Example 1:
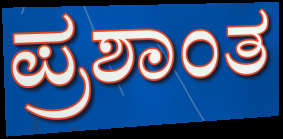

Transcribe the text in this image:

ಪ್ರಶಾಂತ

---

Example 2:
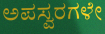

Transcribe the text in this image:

ಅಪಸ್ವರಗಳೇ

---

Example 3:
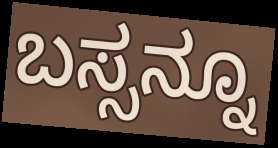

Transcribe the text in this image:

ಬಸ್ಸನ್ನೂ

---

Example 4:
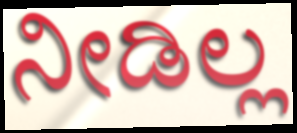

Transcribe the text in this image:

ನೀಡಿಲ್ಲ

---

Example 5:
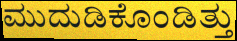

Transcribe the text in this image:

ಮುದುಡಿಕೊಂಡಿತ್ತು